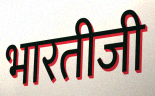
भारतीजी